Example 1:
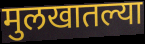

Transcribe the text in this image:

मुलखातल्या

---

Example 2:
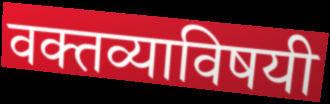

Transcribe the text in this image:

वक्तव्याविषयी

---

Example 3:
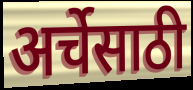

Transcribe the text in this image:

अर्चेसाठी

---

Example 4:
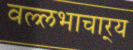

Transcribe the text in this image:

वल्लभाचार्य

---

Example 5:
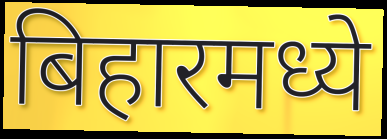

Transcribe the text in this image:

बिहारमध्ये